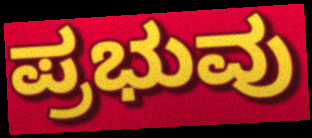
ಪ್ರಭುವು